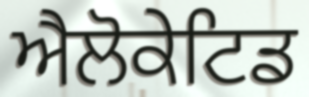
ਐਲੋਕੇਟਿਡ